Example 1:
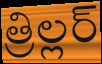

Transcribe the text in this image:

త్రిల్లర్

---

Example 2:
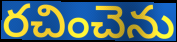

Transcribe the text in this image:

రచించెను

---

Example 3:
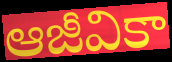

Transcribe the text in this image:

ఆజీవికా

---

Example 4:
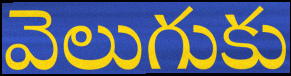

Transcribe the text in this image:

వెలుగుకు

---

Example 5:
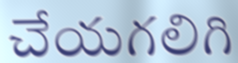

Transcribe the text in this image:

చేయగలిగి